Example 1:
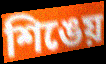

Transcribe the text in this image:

শিঙেয়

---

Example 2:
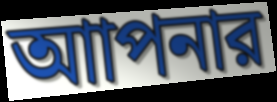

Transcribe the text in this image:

আাপনার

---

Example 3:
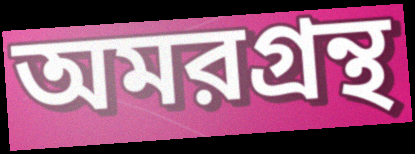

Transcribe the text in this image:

অমরগ্রন্থ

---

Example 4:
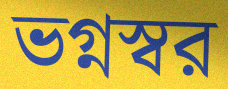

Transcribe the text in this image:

ভগ্নস্বর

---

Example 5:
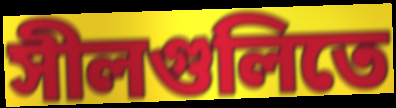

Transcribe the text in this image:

সীলগুলিতে